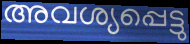
അവശ്യപ്പെട്ടു